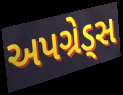
અપગ્રેડ્સ